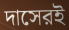
দাসেরই